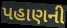
પહાણની